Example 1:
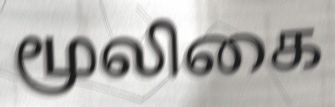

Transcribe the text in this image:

மூலிகை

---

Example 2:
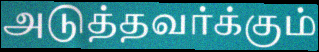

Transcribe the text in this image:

அடுத்தவர்க்கும்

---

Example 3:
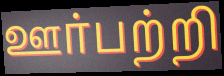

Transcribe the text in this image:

ஊர்பற்றி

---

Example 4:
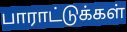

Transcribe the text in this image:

பாராட்டுக்கள்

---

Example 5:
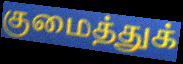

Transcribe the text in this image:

குமைத்துக்